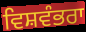
ਵਿਸ਼ਵੰਭਰਾ